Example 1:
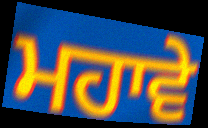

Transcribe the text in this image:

ਮਹਾਵੇ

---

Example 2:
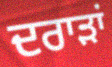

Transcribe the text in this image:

ਦਰਾੜਾਂ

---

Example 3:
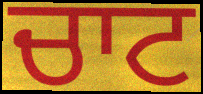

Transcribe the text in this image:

ਚਾਟ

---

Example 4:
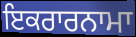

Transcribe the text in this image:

ਇਕਰਾਰਨਾਮਾ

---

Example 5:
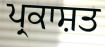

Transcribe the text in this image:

ਪ੍ਰਕਾਸ਼ਤ